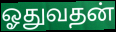
ஓதுவதன்